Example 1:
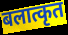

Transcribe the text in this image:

बलात्कृत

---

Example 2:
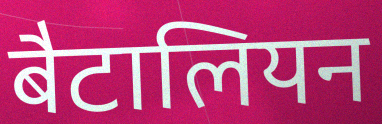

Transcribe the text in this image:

बैटालियन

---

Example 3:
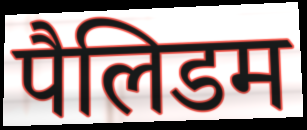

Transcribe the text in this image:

पैलिडम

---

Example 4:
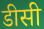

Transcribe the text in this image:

डीसी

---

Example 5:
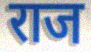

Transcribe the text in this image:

राज